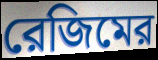
রেজিমের